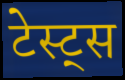
टेस्ट्स